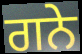
ਗਨੇ